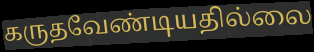
கருதவேண்டியதில்லை